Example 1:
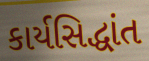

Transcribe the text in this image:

કાર્યસિદ્ધાંત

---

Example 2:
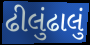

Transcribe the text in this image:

ઢીલુંઢાલું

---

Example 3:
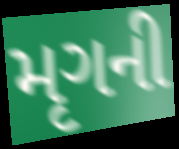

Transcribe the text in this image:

મૃગની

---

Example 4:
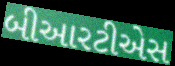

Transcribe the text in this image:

બીઆરટીએસ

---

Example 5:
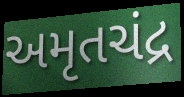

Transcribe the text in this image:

અમૃતચંદ્ર